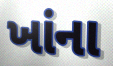
ખાંના